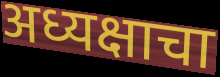
अध्यक्षाचा